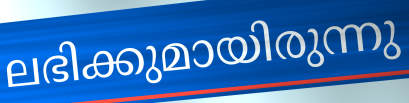
ലഭിക്കുമായിരുന്നു